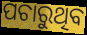
ପଚାରୁଥିବ